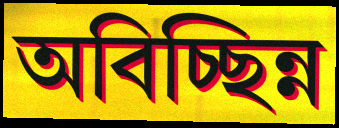
অবিচ্ছিন্ন